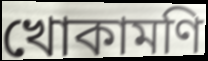
খোকামণি